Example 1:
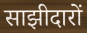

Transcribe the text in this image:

साझीदारों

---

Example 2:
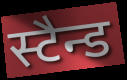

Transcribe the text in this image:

स्टैन्ड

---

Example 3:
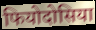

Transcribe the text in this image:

फियोदोसिया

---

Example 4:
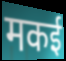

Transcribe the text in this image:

मकई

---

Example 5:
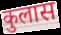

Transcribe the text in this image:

कुलास